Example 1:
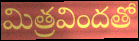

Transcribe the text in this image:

మిత్రవిందతో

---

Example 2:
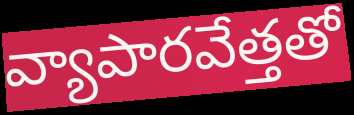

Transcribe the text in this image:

వ్యాపారవేత్తతో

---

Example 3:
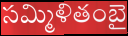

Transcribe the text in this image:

సమ్మిళితంబై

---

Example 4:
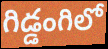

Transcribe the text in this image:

గిడ్డంగిలో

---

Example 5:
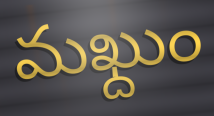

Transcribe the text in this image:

మఖ్దుం